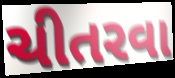
ચીતરવા